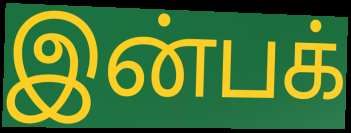
இன்பக்